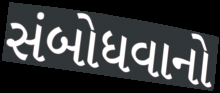
સંબોધવાનો